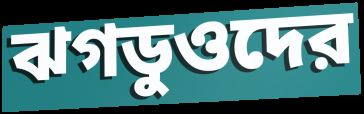
ঝগডুওদের